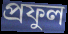
প্রফুল